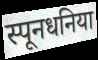
स्पूनधनिया